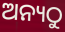
ଅନ୍ୟଠୁ